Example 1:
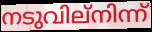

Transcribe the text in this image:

നടുവില്നിന്ന്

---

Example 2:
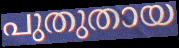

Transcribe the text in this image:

പുതുതായ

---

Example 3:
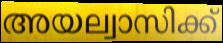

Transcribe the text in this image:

അയല്വാസിക്ക്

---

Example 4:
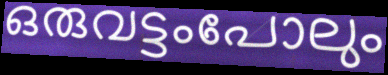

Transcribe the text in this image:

ഒരുവട്ടംപോലും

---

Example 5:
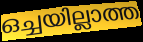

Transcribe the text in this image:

ഒച്ചയില്ലാത്ത